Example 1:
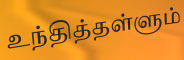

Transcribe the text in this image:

உந்தித்தள்ளும்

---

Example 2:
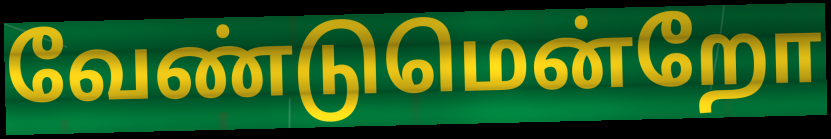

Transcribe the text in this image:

வேண்டுமென்றோ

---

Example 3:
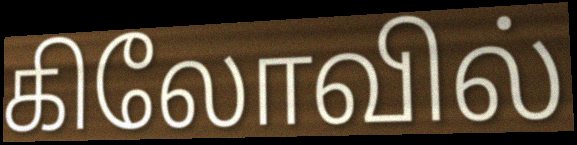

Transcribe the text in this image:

கிலோவில்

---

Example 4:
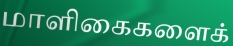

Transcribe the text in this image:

மாளிகைகளைக்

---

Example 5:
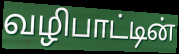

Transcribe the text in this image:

வழிபாட்டின்